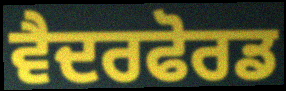
ਵੈਦਰਫੋਰਡ